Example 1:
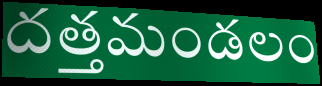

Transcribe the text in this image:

దత్తమండలం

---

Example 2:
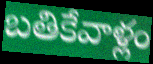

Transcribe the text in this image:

బతికేవాళ్లం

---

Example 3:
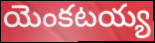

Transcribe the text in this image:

యెంకటయ్య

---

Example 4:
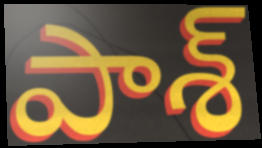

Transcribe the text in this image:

పాశ్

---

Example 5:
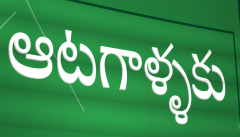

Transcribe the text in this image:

ఆటగాళ్ళకు